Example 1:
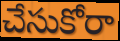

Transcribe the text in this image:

చేసుకోరా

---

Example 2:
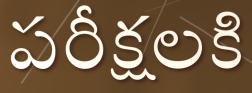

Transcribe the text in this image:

పరీక్షలకి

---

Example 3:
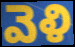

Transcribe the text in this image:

వెళి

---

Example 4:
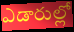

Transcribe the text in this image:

ఎడారుల్లో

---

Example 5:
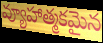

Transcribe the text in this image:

వ్యూహాత్మకమైన